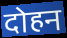
दोहन